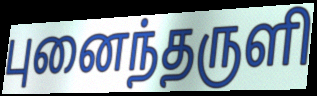
புனைந்தருளி